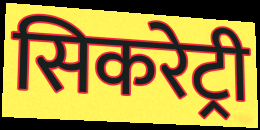
सिकरेट्री